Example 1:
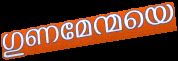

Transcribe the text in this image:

ഗുണമേന്മയെ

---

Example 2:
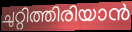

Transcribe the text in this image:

ചുറ്റിത്തിരിയാൻ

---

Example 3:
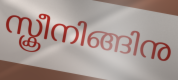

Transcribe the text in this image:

സ്ക്രീനിങ്ങിനു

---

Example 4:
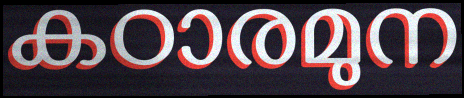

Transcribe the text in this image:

കഠാരമുന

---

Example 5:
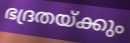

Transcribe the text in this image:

ഭദ്രതയ്ക്കും